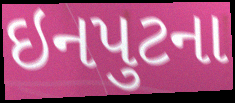
ઇનપુટના